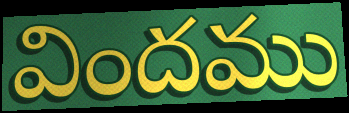
విందము